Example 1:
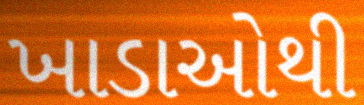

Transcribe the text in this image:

ખાડાઓથી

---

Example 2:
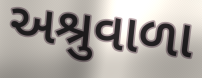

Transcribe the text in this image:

અશ્રુવાળા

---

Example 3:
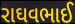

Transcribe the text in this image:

રાઘવભાઈ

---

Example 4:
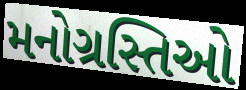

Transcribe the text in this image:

મનોગ્રસ્તિઓ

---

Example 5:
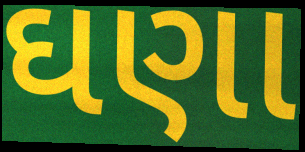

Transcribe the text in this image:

ઘણા